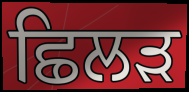
ਛਿਲੜ